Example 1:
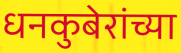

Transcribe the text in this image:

धनकुबेरांच्या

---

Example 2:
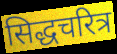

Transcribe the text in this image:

सिद्धचरित्र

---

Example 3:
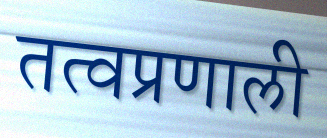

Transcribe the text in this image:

तत्वप्रणाली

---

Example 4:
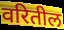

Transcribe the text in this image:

वरितील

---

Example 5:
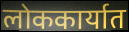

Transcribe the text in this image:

लोककार्यात